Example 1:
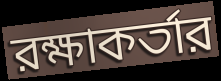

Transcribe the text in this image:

রক্ষাকর্তার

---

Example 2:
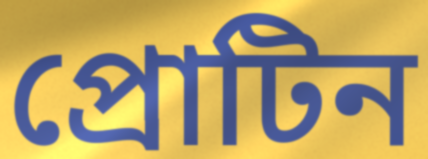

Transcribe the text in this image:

প্রোটিন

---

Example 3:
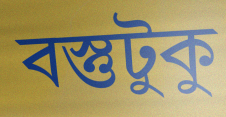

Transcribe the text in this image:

বস্তুটুকু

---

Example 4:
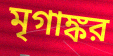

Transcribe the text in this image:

মৃগাঙ্কর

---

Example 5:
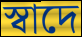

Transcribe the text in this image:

স্বাদে